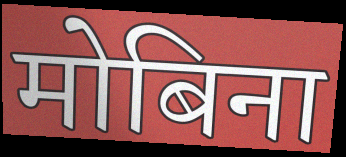
मोबिना